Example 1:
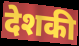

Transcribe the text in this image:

देशकी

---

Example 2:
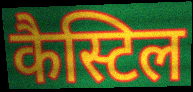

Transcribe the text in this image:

कैस्टिल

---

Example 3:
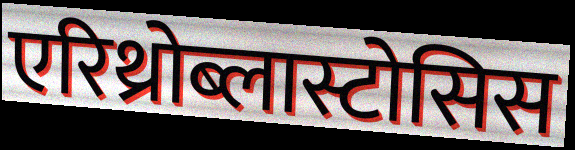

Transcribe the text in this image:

एरिथ्रोब्लास्टोसिस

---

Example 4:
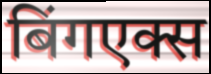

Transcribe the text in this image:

बिंगएक्स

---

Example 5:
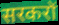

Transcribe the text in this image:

सरकरों